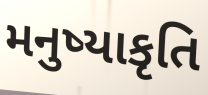
મનુષ્યાકૃતિ